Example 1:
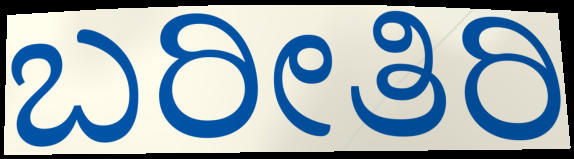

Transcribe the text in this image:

ಬರೀತಿರಿ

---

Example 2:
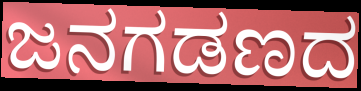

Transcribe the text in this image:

ಜನಗಡಣದ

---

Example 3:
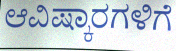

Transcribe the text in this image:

ಆವಿಷ್ಕಾರಗಳಿಗೆ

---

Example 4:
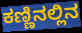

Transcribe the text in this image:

ಕಣ್ಣಿನಲ್ಲಿನ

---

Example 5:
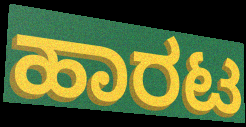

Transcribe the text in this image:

ಹಾರಟ